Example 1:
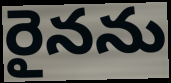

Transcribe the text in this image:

రైనను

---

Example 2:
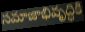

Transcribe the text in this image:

సమాజాభివృద్ధికి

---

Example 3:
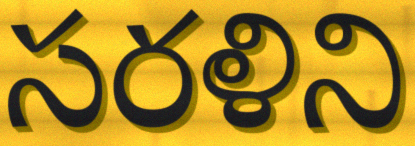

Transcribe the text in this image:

సరళిని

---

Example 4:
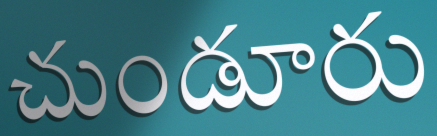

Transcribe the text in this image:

చుండూరు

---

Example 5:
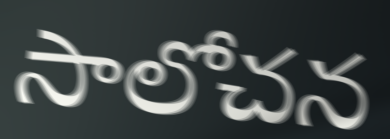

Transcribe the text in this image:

సాలోచన